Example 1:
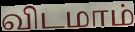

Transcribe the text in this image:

விடமாம்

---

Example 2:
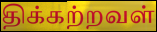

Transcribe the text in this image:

திக்கற்றவள்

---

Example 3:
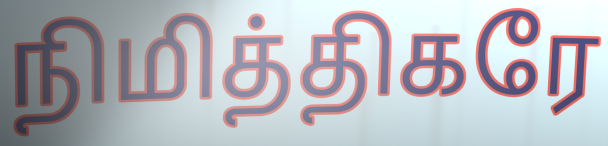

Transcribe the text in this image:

நிமித்திகரே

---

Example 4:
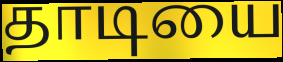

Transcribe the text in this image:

தாடியை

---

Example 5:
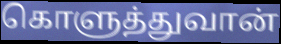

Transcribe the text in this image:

கொளுத்துவான்